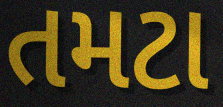
તમટા